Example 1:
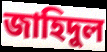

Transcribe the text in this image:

জাহিদুল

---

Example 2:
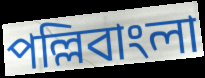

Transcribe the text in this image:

পল্লিবাংলা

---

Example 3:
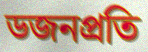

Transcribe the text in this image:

ডজনপ্রতি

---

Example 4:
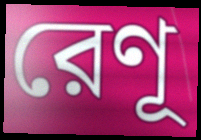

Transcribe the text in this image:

রেণূ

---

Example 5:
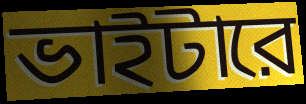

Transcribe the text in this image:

ভাইটারে